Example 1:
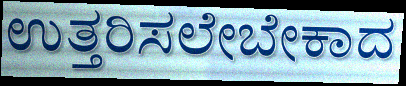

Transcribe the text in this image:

ಉತ್ತರಿಸಲೇಬೇಕಾದ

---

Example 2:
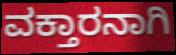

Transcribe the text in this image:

ವಕ್ತಾರನಾಗಿ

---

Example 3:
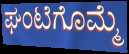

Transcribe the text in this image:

ಘಂಟೆಗೊಮ್ಮೆ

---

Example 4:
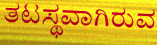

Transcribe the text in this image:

ತಟಸ್ಥವಾಗಿರುವ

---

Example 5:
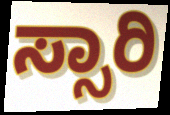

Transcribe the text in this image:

ಸ್ಸಾರಿ